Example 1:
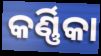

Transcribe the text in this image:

କର୍ଣ୍ଣିକା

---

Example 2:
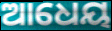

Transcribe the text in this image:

ଆଧେୟ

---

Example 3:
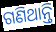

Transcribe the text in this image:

ଗଣିଥାନ୍ତି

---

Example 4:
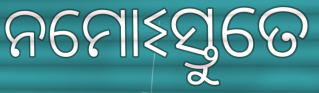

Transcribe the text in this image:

ନମୋଽସ୍ତୁତେ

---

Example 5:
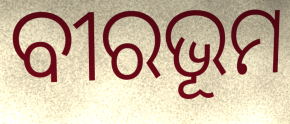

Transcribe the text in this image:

ବୀରଭୂମ